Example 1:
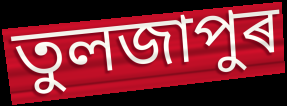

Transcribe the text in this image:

তুলজাপুৰ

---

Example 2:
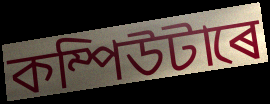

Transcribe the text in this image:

কম্পিউটাৰে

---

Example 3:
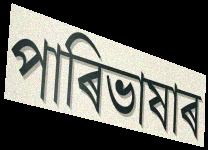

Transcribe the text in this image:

পাৰিভাষাৰ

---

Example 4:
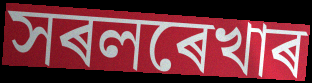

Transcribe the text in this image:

সৰলৰেখাৰ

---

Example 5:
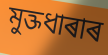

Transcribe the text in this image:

মুক্তধাৰাৰ